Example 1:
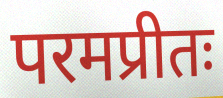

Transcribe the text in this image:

परमप्रीतः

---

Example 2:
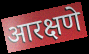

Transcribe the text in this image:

आरक्षणे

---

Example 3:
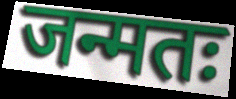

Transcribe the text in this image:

जन्मतः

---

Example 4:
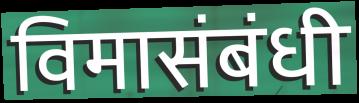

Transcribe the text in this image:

विमासंबंधी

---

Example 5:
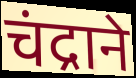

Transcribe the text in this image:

चंद्राने